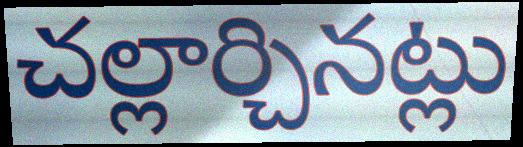
చల్లార్చినట్లు